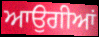
ਆਉਗੀਆਂ